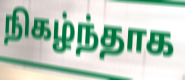
நிகழ்ந்தாக